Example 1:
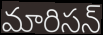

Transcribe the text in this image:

మారిసన్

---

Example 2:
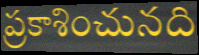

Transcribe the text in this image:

ప్రకాశించునది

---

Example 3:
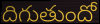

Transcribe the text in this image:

దిగుతుందో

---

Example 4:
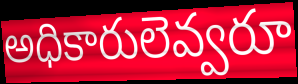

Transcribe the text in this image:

అధికారులెవ్వరూ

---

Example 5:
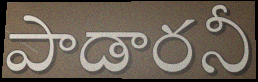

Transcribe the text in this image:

పాడారనీ